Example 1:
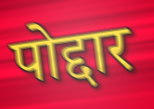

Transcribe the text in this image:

पोद्दार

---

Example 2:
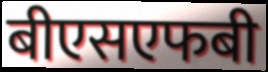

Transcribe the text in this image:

बीएसएफबी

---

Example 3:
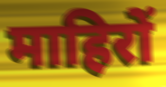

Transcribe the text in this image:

माहिरों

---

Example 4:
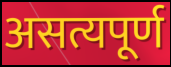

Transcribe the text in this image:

असत्यपूर्ण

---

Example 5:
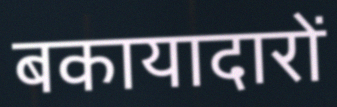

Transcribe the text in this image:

बकायादारों